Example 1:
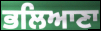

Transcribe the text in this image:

ਭਲਿਆਣਾ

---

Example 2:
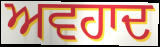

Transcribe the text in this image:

ਅਵਹਾਦ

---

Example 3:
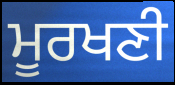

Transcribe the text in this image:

ਮੂਰਖਣੀ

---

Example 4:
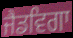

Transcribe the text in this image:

ਜੈਡਵਿਗਾ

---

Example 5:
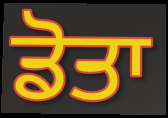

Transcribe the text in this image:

ਡੋਤਾ